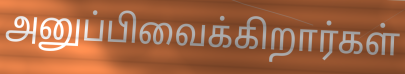
அனுப்பிவைக்கிறார்கள்